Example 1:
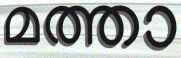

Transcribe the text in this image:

മത്താ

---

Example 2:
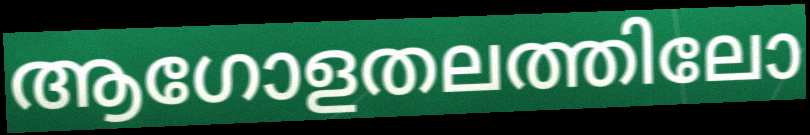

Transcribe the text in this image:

ആഗോളതലത്തിലോ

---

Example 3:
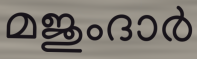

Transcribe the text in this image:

മജുംദാർ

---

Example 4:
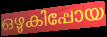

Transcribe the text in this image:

ഒഴുകിപ്പോയ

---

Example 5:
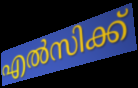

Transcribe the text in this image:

എൽസിക്ക്